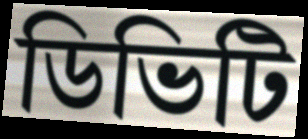
ডিভিটি